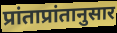
प्रांताप्रांतानुसार